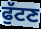
ਫੁੱਟਣ